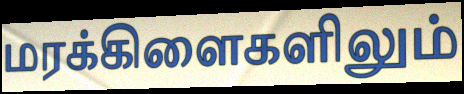
மரக்கிளைகளிலும்